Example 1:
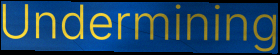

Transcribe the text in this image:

Undermining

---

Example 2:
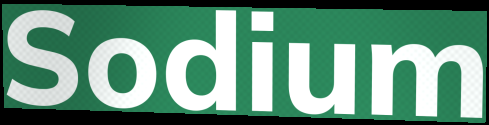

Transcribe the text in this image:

Sodium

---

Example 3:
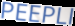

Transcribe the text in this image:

PEEPLI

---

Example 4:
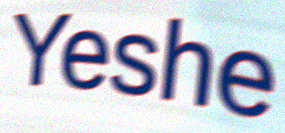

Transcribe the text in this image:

Yeshe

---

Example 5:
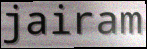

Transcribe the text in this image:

jairam